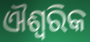
ଐଶ୍ବରିକ